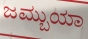
ಜಮ್ಬುಯಾ